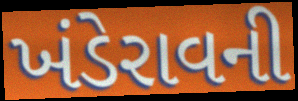
ખંડેરાવની